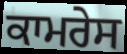
ਕਾਮਰੇਸ